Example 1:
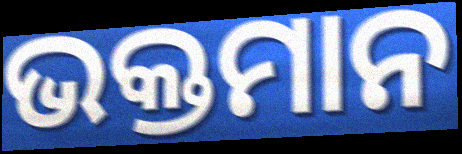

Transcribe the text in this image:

ଭକ୍ତମାନ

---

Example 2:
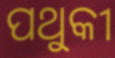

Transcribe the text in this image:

ପଥୁକୀ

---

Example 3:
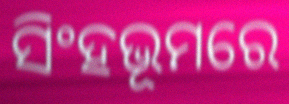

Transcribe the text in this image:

ସିଂହଭୂମରେ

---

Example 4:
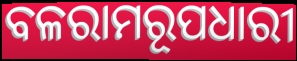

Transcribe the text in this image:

ବଳରାମରୂପଧାରୀ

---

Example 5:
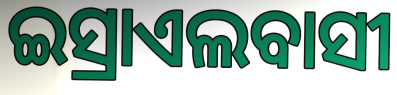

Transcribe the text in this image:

ଇସ୍ରାଏଲବାସୀ